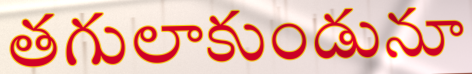
తగులాకుండునూ